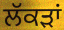
ਲੱਕੜਾਂ